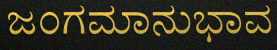
ಜಂಗಮಾನುಭಾವ